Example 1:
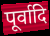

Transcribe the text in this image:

पूर्वादि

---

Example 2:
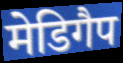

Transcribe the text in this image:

मेडिगैप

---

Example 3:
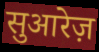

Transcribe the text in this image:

सुआरेज़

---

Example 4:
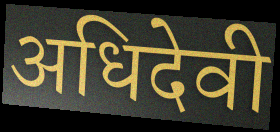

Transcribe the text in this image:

अधिदेवी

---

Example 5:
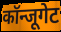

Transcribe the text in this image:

कॉन्जूगेट